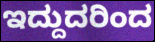
ಇದ್ದುದರಿಂದ